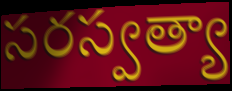
సరస్వత్యా